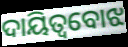
ଦାୟିତ୍ୱବୋଝ